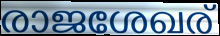
രാജശേഖര്